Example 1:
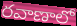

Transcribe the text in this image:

రవాణాలో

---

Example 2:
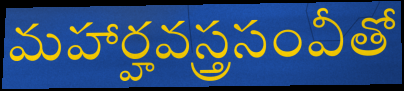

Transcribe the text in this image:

మహార్హవస్త్రసంవీతో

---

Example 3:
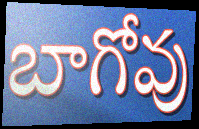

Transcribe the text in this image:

బాగోవు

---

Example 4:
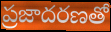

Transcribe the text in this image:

ప్రజాదరణతో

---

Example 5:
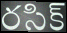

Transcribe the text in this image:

రసిక్